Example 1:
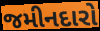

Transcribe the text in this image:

જમીનદારો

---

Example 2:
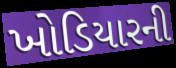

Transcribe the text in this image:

ખોડિયારની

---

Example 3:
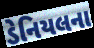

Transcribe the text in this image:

ડેનિયલના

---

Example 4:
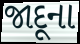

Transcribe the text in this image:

જાદૂના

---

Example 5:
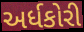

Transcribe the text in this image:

અર્ધકોરી